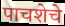
पाचशेचे